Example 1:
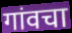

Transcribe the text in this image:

गांवचा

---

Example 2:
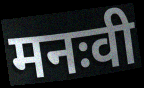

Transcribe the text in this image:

मनःवी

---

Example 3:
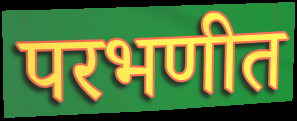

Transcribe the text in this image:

परभणीत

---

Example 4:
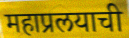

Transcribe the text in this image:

महाप्रलयाची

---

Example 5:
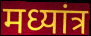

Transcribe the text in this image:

मध्यांत्र